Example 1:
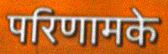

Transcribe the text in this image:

परिणामके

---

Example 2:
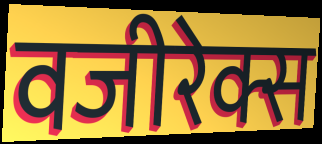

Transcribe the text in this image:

वजीरेक्स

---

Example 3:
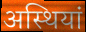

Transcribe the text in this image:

अस्थियां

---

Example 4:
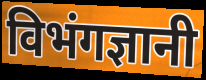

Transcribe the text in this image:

विभंगज्ञानी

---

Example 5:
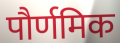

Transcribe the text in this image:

पौर्णमिक